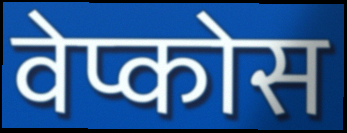
वेप्कोस